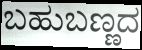
ಬಹುಬಣ್ಣದ